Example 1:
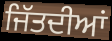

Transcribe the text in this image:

ਜਿੱਤਦੀਆਂ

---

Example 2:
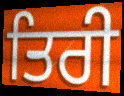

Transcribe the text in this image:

ਤਿਰੀ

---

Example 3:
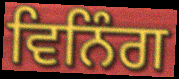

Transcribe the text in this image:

ਵਿਨਿੰਗ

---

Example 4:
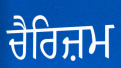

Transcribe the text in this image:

ਚੈਰਿਜ਼ਮ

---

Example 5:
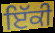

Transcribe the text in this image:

ਇੱਕੀ